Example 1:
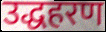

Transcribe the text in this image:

उद्धहरण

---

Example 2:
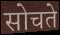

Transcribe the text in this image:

सोचते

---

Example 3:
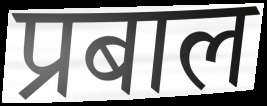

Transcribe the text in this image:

प्रबाल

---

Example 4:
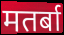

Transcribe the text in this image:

मतर्बा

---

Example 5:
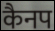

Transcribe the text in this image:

कैनप